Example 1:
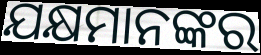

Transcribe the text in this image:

ଯକ୍ଷମାନଙ୍କର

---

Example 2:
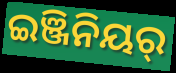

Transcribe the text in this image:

ଇଞ୍ଜିନିୟର୍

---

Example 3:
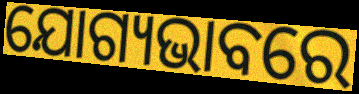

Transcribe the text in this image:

ଯୋଗ୍ୟଭାବରେ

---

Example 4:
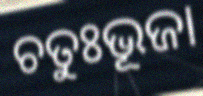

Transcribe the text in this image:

ଚତୁଃଭୂଜା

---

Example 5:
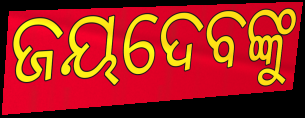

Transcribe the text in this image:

ଜୟଦେବଙ୍କୁ